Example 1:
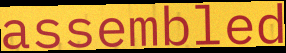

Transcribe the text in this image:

assembled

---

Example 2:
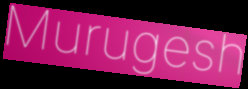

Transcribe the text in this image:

Murugesh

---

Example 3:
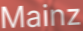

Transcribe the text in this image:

Mainz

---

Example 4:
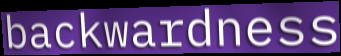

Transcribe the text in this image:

backwardness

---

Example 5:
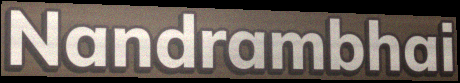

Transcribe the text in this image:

Nandrambhai